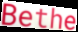
Bethe